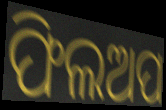
ଫିଲଅପ